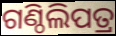
ଗଣ୍ଠିଲିପତ୍ର